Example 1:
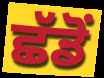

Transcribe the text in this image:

ਛੱਡੋਂ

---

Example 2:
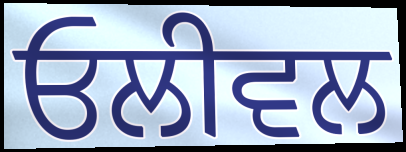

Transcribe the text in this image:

ਓਲੀਵਲ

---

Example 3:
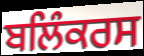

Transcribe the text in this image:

ਬਲਿੰਕਰਸ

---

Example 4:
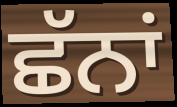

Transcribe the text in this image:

ਛੱਨਾਂ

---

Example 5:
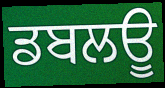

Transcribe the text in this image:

ਡਬਲਊ